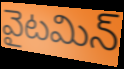
వైటమిన్